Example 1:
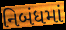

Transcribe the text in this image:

નિબંધમાં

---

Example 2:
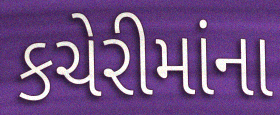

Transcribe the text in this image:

કચેરીમાંના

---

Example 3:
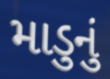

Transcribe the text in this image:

માડુનું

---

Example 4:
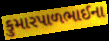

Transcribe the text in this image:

કુમારપાળભાઈના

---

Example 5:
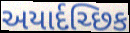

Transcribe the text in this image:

અયાર્દચ્છિક